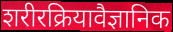
शरीरक्रियावैज्ञानिक